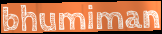
bhumiman